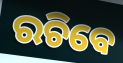
ରଚିବେ